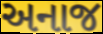
અનાજ